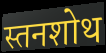
स्तनशोथ